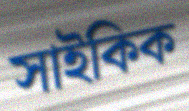
সাইকিক